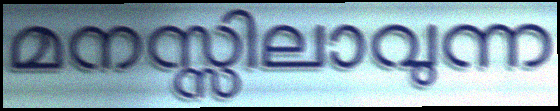
മനസ്സിലാവുന്ന